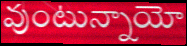
వుంటున్నాయో